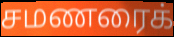
சமணரைக்